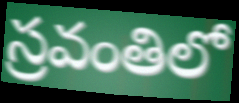
స్రవంతిలో